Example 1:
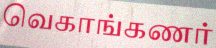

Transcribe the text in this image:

வெகாங்கணர்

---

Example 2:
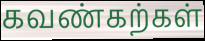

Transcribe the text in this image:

கவண்கற்கள்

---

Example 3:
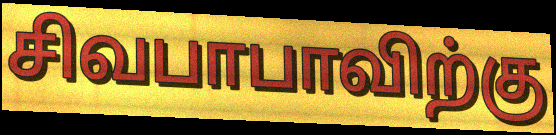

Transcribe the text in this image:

சிவபாபாவிற்கு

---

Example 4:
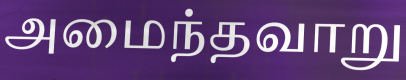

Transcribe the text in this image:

அமைந்தவாறு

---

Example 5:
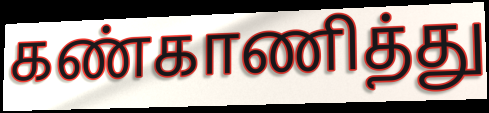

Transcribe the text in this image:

கண்காணித்து